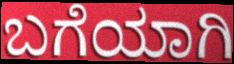
ಬಗೆಯಾಗಿ